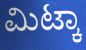
ಮಿಟ್ಕಾ